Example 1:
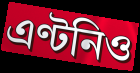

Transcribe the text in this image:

এণ্টনিও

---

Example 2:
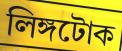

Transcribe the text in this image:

লিঙ্গটোক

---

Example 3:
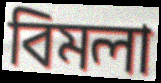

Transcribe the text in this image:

বিমলা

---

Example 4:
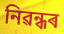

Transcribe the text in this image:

নিৱন্ধৰ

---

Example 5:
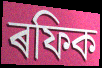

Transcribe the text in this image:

ৰফিক